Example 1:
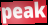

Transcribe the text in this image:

peak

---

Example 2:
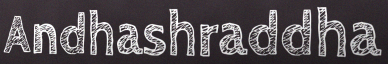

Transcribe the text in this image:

Andhashraddha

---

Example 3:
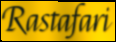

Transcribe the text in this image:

Rastafari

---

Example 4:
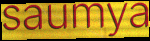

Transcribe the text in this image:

saumya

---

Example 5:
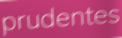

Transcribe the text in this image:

prudentes